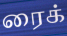
ரைக்